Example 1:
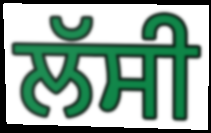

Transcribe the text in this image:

ਲੱਸੀ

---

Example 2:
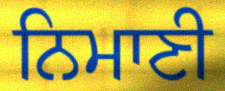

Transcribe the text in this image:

ਨਿਮਾਣੀ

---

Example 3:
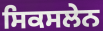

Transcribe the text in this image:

ਸਿਕਸਲੇਨ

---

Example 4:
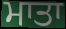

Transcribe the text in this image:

ਮਾਤਾ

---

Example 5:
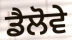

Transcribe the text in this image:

ਡੈਲੋਵੇ